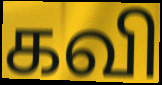
கவி